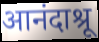
आनंदाश्रू